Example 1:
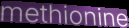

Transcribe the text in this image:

methionine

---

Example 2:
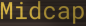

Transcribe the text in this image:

Midcap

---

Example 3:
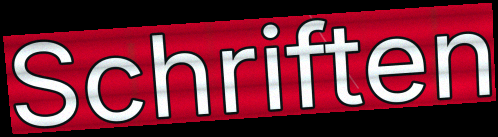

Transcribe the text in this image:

Schriften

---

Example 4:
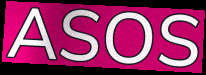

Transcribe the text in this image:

ASOS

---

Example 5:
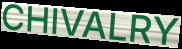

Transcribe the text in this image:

CHIVALRY